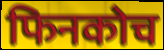
फिनकोच